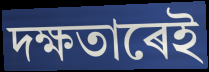
দক্ষতাৰেই